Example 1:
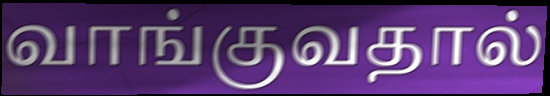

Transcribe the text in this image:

வாங்குவதால்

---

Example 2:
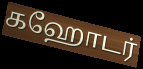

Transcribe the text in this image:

கஹோடர்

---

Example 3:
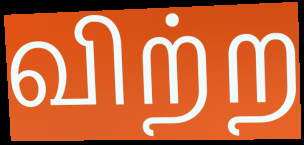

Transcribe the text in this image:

விற்ற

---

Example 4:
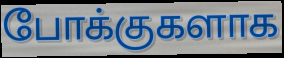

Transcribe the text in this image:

போக்குகளாக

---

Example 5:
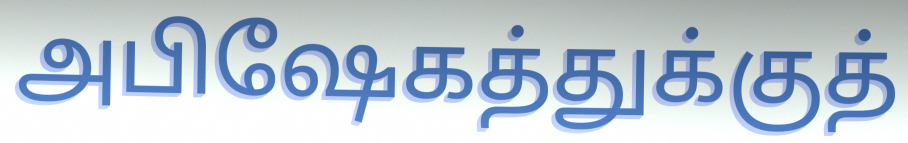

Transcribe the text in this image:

அபிஷேகத்துக்குத்